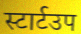
स्टार्टउप